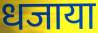
धजाया